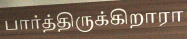
பார்த்திருக்கிறாரா